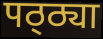
पठ्ठ्या